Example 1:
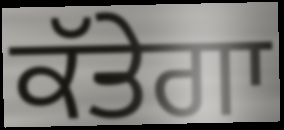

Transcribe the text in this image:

ਕੱਤੇਗਾ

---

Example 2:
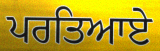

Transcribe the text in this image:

ਪਰਤਿਆਏ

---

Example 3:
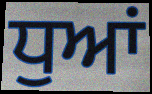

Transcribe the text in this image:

ਧੁਆਂ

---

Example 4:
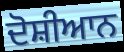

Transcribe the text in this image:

ਦੋਸ਼ੀਆਨ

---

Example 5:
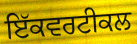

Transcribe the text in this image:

ਇੱਕਵਰਟੀਕਲ